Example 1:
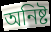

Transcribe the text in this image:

অনিষ্ট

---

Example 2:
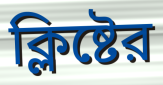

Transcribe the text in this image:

ক্লিষ্টের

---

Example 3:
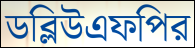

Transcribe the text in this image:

ডব্লিউএফপির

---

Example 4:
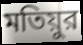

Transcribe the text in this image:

মতিয়ুর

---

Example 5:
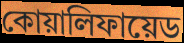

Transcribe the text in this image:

কোয়ালিফায়েড